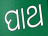
ପାଥ